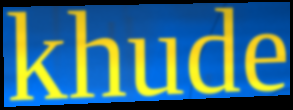
khude